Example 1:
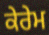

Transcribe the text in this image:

ਕੇਰੇਮ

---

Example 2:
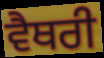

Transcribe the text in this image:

ਵੈਥਰੀ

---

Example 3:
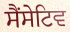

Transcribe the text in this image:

ਸੈਂਸੇਟਿਵ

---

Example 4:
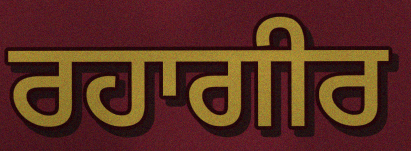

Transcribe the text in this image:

ਰਹਾਗੀਰ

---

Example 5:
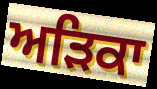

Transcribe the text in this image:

ਅੜਿਕਾ